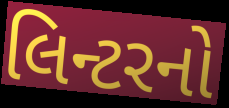
લિન્ટરનો